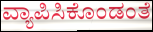
ವ್ಯಾಪಿಸಿಕೊಂಡಂತೆ